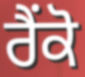
ਰੈਂਕੋ